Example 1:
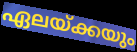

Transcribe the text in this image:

ഏലയ്ക്കയും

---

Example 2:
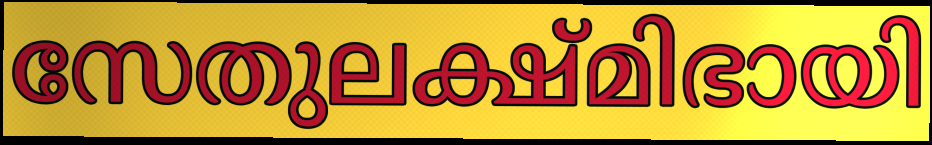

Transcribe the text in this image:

സേതുലക്ഷ്മിഭായി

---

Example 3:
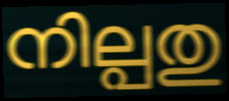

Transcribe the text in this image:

നില്പതു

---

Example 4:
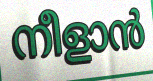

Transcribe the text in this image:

നീളാൻ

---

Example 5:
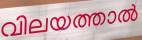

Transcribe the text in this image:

വിലയത്താൽ